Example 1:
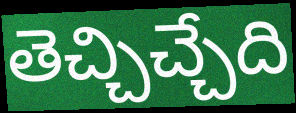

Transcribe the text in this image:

తెచ్చిచ్చేది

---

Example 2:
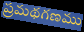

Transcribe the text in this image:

ప్రమథగణము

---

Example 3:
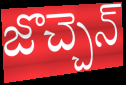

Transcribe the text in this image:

జొచ్చెన్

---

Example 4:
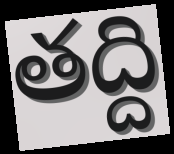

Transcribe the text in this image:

తద్ది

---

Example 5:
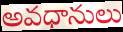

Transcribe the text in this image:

అవధానులు